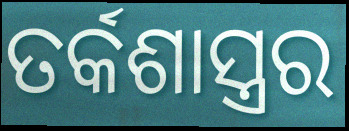
ତର୍କଶାସ୍ତ୍ରର